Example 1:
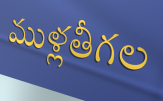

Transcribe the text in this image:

ముళ్లతీగల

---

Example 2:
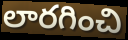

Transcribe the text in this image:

లారగించి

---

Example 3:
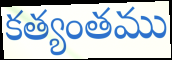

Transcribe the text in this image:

కత్యంతము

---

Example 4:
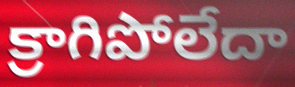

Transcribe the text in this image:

క్రాగిపోలేదా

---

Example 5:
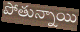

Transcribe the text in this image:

పోతున్నాయి